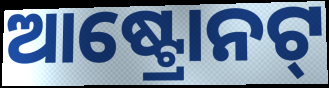
ଆଷ୍ଟ୍ରୋନଟ୍